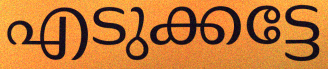
എടുക്കട്ടേ